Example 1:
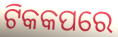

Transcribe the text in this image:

ଟିକକପରେ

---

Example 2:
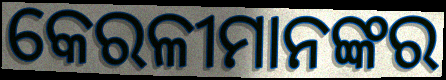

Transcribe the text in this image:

କେରଳୀମାନଙ୍କର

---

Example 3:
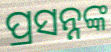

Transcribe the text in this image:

ପ୍ରସନ୍ନଙ୍କ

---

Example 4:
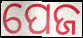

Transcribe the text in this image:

ପେଜ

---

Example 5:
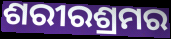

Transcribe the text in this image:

ଶରୀରଶ୍ରମର